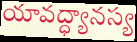
యావద్ధ్యానస్య